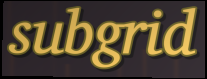
subgrid